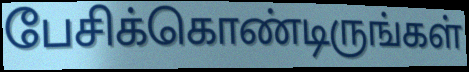
பேசிக்கொண்டிருங்கள்